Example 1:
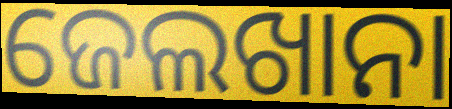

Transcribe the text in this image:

ଜେଲଖାନା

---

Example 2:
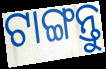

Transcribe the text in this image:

ଟାଙ୍ଗନ୍ତୁ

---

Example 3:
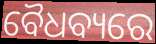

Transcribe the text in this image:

ବୈଧବ୍ୟରେ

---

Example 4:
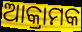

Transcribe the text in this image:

ଆକ୍ରାମକ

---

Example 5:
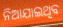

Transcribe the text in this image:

ନିଆଯାଇଥିବ